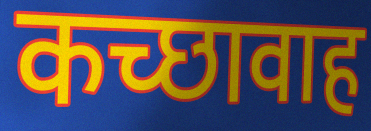
कच्छावाह